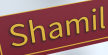
Shamil